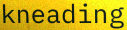
kneading